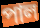
পাল